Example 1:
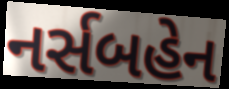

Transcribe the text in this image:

નર્સબહેન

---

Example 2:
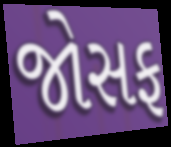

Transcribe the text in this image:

જોસફ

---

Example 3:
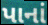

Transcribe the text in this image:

પાનાં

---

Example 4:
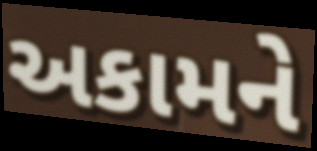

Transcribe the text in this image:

અકામને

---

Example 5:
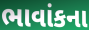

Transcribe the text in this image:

ભાવાંકના